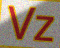
Vz